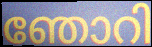
ഞോറി